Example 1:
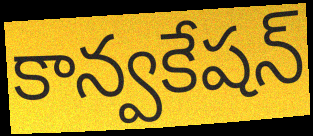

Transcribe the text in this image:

కాన్వకేషన్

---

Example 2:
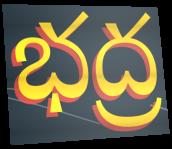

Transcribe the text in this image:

భద్ర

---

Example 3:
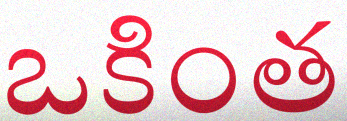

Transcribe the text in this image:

ఒకింత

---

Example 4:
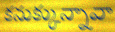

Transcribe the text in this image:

కనుక్కున్నావా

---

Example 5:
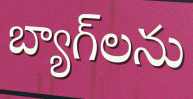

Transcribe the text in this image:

బ్యాగ్‌లను